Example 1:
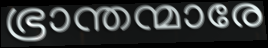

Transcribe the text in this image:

ഭ്രാന്തന്മാരേ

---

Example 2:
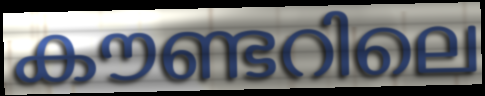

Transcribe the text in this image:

കൗണ്ടറിലെ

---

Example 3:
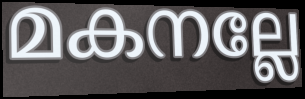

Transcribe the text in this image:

മകനല്ലേ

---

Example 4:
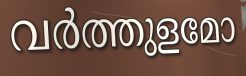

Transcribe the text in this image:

വർത്തുളമോ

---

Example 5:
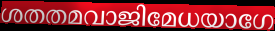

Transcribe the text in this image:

ശതതമവാജിമേധയാഗേ